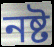
নষ্ট